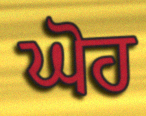
ਘੋਹ